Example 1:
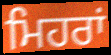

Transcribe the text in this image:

ਮਿਹਰਾਂ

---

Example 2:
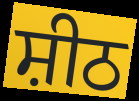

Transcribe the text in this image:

ਸ਼ੀਠ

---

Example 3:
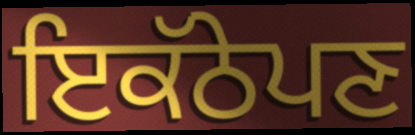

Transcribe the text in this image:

ਇਕੱਠੇਪਣ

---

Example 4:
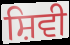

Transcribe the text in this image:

ਸ਼ਿਵੀ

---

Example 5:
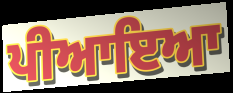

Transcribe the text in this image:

ਪੀਆਇਆ